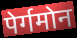
पेर्गमोन